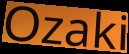
Ozaki